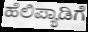
ಹೆಲಿಪ್ಯಾಡಿಗೆ